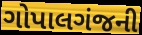
ગોપાલગંજની